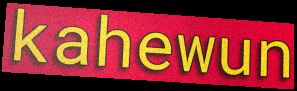
kahewun